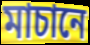
মাচানে